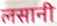
लसानी